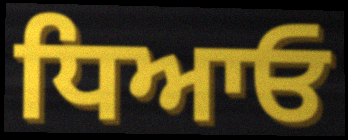
ਧਿਆਓ